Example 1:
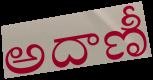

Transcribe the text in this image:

అదాణీ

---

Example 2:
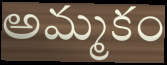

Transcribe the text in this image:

అమ్మకం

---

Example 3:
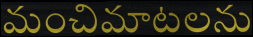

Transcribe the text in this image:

మంచిమాటలను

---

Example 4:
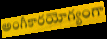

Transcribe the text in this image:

అంగీకారయోగ్యంగా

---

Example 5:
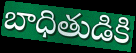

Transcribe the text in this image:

బాధితుడికి